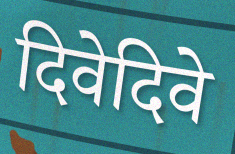
दिवेदिवे